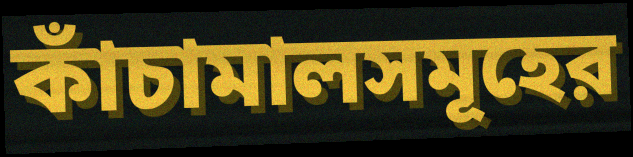
কাঁচামালসমূহের